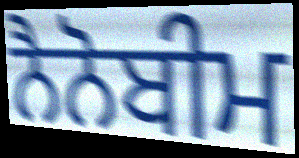
ਨੈਨੋਬੀਮ